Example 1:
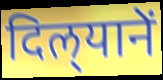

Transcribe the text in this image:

दिल्यानें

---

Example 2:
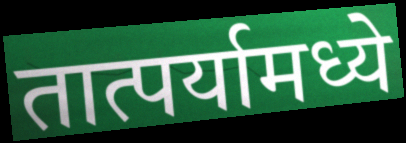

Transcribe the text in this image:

तात्पर्यामध्ये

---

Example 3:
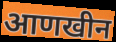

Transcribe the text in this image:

आणखीन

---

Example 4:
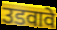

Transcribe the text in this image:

उडवावे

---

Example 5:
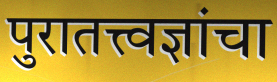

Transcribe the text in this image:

पुरातत्त्वज्ञांचा